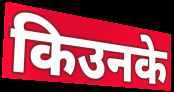
किउनके